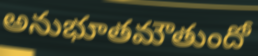
అనుభూతమౌతుందో